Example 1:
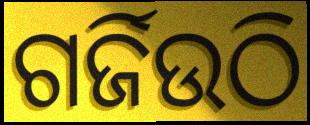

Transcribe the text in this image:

ଗର୍ଜିଉଠି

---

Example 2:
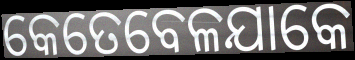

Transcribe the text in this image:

କେତେବେଳଯାକେ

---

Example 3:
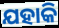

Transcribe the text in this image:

ଯହାକି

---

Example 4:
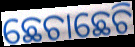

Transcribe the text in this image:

ଛେଚାଛେଚି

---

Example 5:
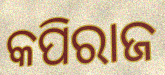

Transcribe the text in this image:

କପିରାଜ